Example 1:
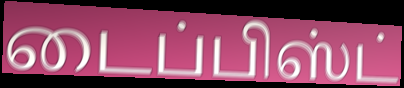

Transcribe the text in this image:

டைப்பிஸ்ட்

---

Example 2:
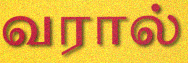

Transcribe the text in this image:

வரால்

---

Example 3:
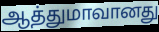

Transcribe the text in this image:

ஆத்துமாவானது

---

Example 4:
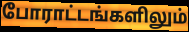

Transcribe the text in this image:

போராட்டங்களிலும்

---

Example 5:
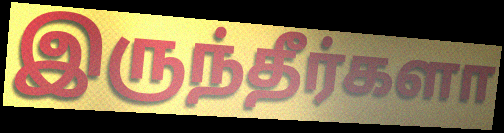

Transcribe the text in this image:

இருந்தீர்களா